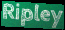
Ripley